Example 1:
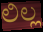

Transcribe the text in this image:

ಲಿಲ್ಲ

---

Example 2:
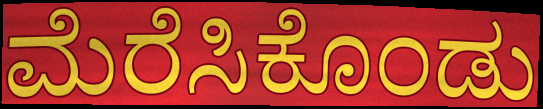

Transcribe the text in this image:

ಮೆರೆಸಿಕೊಂಡು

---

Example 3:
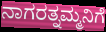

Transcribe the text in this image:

ನಾಗರತ್ನಮ್ಮನಿಗೆ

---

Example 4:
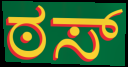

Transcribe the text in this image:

ಠಸ್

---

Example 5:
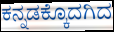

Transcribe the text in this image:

ಕನ್ನಡಕ್ಕೊದಗಿದ